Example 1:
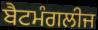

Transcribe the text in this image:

ਬੈਟਮੰਗਲੀਜ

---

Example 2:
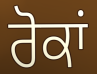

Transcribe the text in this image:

ਰੋਕਾਂ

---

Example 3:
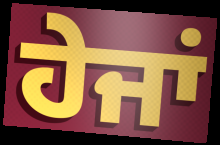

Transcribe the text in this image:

ਹੇਜਾਂ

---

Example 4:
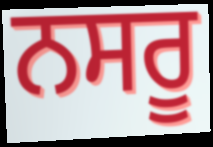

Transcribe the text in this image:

ਨਸਰੂ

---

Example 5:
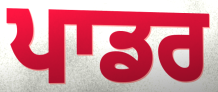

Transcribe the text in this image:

ਪਾਡਰ